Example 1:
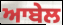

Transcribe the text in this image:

ਆਬੇਲ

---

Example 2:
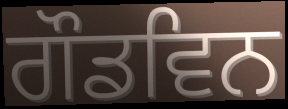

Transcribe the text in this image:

ਗੌਡਵਿਨ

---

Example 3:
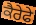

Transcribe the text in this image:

ਕੈਰੇਫੇ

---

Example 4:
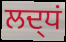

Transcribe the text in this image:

ਲਦ੍ਧਂ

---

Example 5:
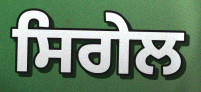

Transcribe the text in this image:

ਸਿਗੇਲ